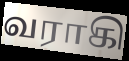
வராகி